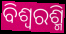
ବିଶ୍ୱରଶ୍ମି